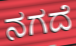
ನಗದೆ